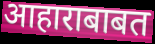
आहाराबाबत